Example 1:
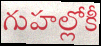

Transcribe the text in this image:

గుహల్లోకీ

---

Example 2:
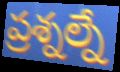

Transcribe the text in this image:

ప్రశ్నల్నే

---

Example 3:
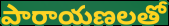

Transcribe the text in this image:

పారాయణలతో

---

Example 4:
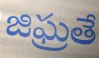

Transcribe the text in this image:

జిఘ్రతే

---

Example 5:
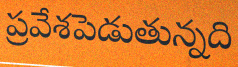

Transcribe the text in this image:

ప్రవేశపెడుతున్నది